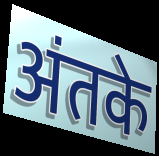
अंतके